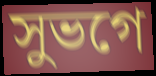
সুভগে